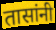
तासांनी